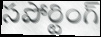
సపోర్టింగ్